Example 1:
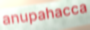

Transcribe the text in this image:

anupahacca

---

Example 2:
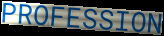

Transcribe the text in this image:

PROFESSION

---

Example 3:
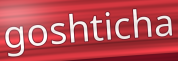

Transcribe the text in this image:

goshticha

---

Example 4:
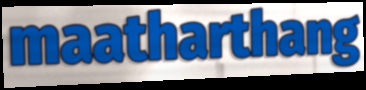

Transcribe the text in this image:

maatharthang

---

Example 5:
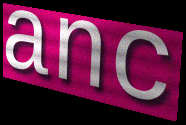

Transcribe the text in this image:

anc